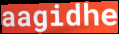
aagidhe